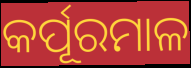
କର୍ପୂରମାଳ